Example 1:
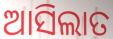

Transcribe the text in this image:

ଆସିଲାତ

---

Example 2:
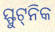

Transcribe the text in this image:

ସ୍ଫୁଟ୍‌ନିକ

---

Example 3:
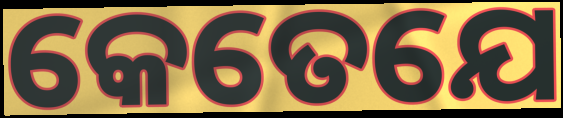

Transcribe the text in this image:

କେତେଯେ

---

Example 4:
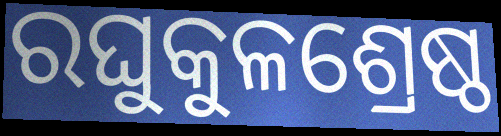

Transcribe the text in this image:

ରଘୁକୁଳଶ୍ରେଷ୍ଠ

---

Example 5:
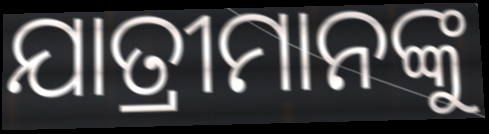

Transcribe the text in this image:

ଯାତ୍ରୀମାନଙ୍କୁ